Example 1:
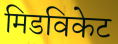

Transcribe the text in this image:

मिडविकेट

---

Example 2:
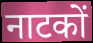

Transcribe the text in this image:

नाटकों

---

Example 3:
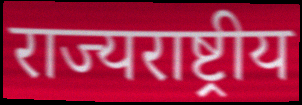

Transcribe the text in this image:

राज्यराष्ट्रीय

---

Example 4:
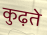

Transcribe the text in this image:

कुढ़ते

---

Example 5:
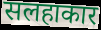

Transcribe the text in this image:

सलहाकार